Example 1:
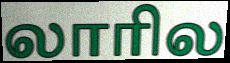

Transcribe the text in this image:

லாரில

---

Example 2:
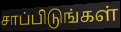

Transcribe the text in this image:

சாப்பிடுங்கள்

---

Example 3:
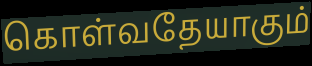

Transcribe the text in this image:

கொள்வதேயாகும்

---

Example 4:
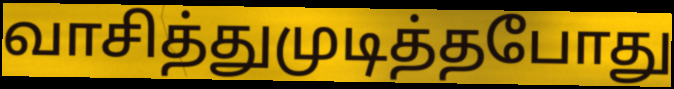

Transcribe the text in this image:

வாசித்துமுடித்தபோது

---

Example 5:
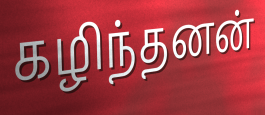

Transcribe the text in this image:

கழிந்தனன்